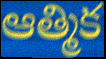
ఆత్మిక